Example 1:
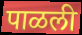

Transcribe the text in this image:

पाळली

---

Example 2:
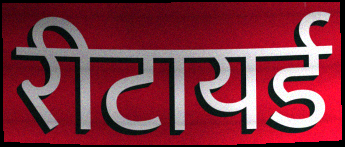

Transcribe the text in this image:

रीटायर्ड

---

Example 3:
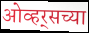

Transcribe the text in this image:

ओव्हर्सच्या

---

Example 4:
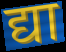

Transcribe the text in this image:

द्या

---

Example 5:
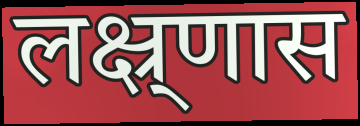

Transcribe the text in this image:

लक्ष्र्णास